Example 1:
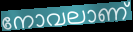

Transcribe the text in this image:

നോവലാണ്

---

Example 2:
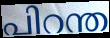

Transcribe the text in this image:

പിറന്ത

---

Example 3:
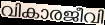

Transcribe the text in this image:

വികാരജീവി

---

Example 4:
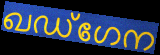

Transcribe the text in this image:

ഖഡ്ഗേന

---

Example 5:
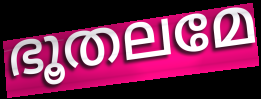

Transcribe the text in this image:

ഭൂതലമേ